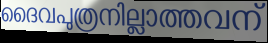
ദൈവപുത്രനില്ലാത്തവന്